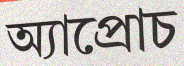
অ্যাপ্রোচ